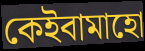
কেইবামাহো